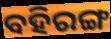
ବହିରଙ୍ଗ